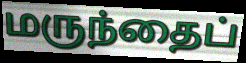
மருந்தைப்